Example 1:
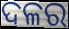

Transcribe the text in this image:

ଦଳର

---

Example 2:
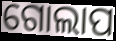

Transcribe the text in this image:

ଗୋଲାପ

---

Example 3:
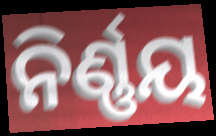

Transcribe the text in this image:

ନିର୍ଣ୍ଣୟ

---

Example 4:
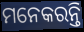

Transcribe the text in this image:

ମନେକରନ୍ତି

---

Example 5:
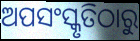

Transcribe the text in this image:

ଅପସଂସ୍କୃତିଠାରୁ